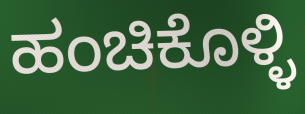
ಹಂಚಿಕೊಳ್ಳಿ